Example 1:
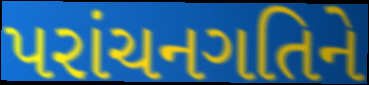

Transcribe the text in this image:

પરાંચનગતિને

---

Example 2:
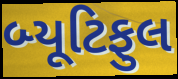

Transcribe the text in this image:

બ્યૂટિફુલ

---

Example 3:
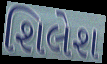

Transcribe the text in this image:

શિલેશ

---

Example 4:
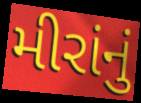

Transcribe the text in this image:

મીરાંનું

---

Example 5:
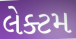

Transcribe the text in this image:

લેક્ટમ